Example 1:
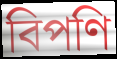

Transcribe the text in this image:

বিপণি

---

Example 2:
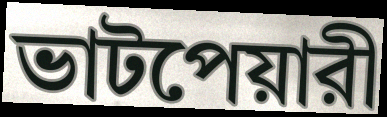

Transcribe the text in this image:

ভাটপেয়ারী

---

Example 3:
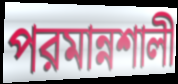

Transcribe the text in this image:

পরমান্নশালী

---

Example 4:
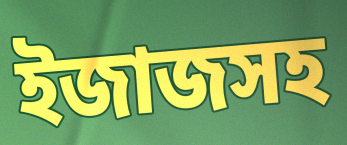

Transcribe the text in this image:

ইজাজসহ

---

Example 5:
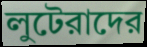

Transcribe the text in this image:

লুটেরাদের